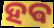
ହଵ